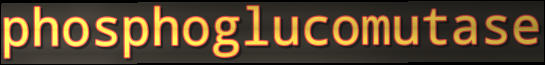
phosphoglucomutase